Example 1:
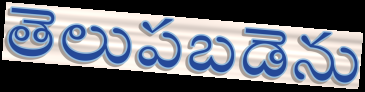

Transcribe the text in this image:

తెలుపబడెను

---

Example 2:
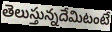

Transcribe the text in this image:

తెలుస్తున్నదేమిటంటే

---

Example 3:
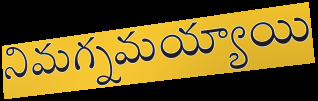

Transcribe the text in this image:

నిమగ్నమయ్యాయి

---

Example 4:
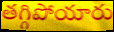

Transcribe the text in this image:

తగ్గిపోయారు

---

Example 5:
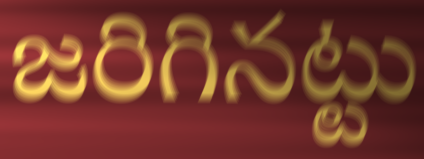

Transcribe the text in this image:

జరిగినట్టు